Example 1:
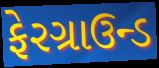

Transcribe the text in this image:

ફેરગ્રાઉન્ડ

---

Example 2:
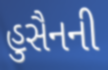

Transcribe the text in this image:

હુસૈનની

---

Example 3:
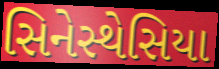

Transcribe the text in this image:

સિનેસ્થેસિયા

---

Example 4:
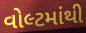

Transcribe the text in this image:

વોલ્ટમાંથી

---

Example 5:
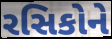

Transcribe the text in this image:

રસિકોને